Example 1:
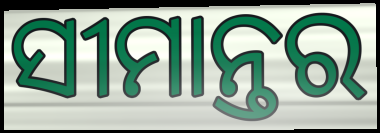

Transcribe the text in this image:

ସୀମାନ୍ତର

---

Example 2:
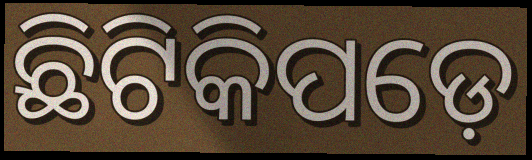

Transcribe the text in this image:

ଛିଟିକିପଡ଼େ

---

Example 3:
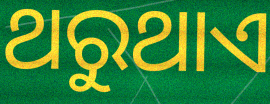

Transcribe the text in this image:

ଥରୁଥାଏ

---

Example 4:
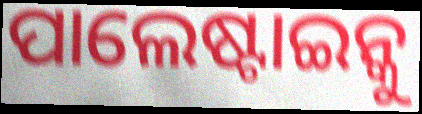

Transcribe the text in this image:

ପାଲେଷ୍ଟାଇନ୍କୁ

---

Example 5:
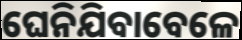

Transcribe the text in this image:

ଘେନିଯିବାବେଳେ